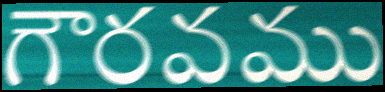
గౌరవము